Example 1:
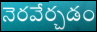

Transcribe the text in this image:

నెరవేర్చడం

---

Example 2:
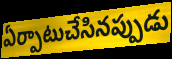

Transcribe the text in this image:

ఏర్పాటుచేసినప్పుడు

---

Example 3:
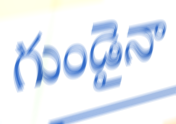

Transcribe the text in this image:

గుండైనా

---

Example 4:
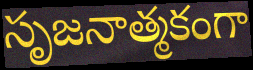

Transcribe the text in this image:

సృజనాత్మకంగా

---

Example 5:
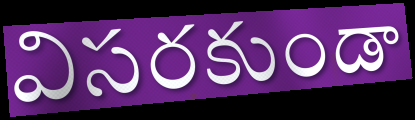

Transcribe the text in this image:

విసరకుండా